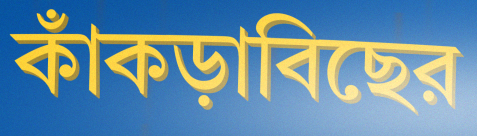
কাঁকড়াবিছের